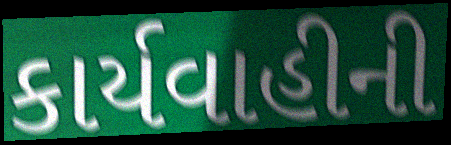
કાર્યવાહીની